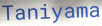
Taniyama